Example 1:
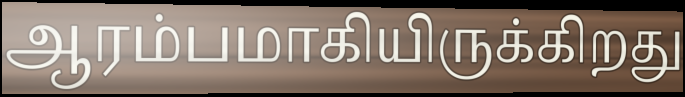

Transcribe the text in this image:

ஆரம்பமாகியிருக்கிறது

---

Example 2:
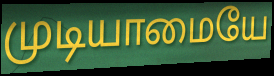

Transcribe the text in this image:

முடியாமையே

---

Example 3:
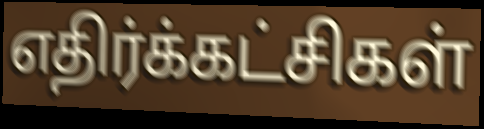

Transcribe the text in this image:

எதிர்க்கட்சிகள்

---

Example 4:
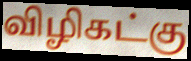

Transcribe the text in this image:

விழிகட்கு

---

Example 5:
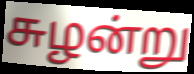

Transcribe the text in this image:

சுழன்று